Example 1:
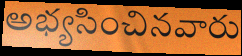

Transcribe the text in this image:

అభ్యసించినవారు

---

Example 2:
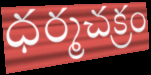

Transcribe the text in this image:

ధర్మచక్రం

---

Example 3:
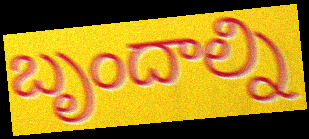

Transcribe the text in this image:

బృందాల్ని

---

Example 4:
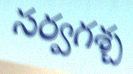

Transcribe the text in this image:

సర్వగశ్చ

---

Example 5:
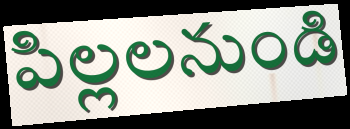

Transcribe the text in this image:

పిల్లలనుండి